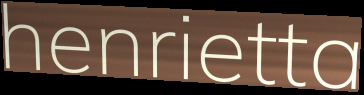
henrietta